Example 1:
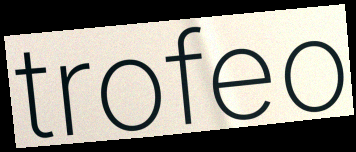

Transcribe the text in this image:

trofeo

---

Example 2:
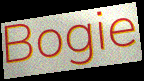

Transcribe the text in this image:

Bogie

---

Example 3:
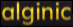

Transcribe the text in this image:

alginic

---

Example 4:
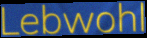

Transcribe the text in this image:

Lebwohl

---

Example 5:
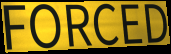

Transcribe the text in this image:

FORCED